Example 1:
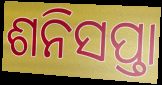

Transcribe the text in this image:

ଶନିସପ୍ତା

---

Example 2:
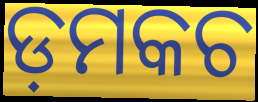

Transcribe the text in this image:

ଡ଼ମକଚ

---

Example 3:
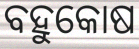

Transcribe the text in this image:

ବହୁକୋଷ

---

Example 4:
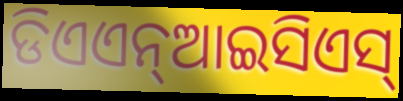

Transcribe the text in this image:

ଡିଏଏନ୍ଆଇସିଏସ୍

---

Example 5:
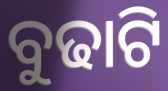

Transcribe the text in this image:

ବୁଢାଟି